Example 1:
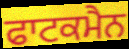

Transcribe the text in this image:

ਫਾਟਕਮੈਨ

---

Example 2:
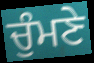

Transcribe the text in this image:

ਚੁੰਮਣੇ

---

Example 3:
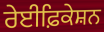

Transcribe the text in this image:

ਰੇਈਫ਼ਿਕੇਸ਼ਨ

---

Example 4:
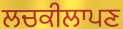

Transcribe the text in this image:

ਲਚਕੀਲਾਪਣ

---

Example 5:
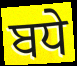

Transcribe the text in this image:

ਬਧੇ